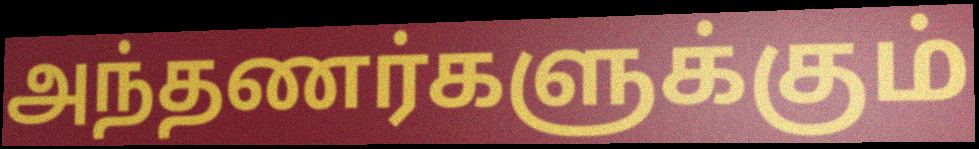
அந்தணர்களுக்கும்